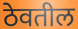
ठेवतील